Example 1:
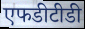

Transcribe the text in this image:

एफडीटीडी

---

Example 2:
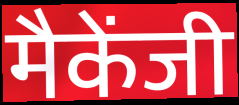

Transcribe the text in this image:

मैकेंजी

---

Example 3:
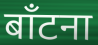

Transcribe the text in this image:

बाँटना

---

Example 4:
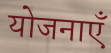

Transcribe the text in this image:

योजनाएँ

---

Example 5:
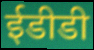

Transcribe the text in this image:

ईडीडी